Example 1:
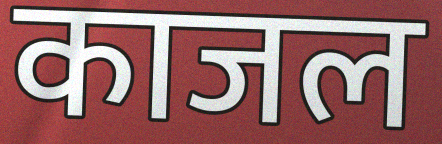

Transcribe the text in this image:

काजल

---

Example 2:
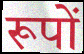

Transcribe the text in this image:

रूपों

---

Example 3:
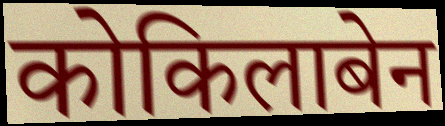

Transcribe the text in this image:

कोकिलाबेन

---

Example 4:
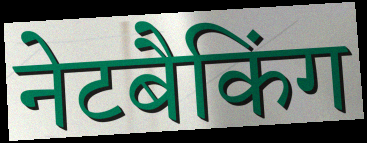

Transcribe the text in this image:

नेटबैकिंग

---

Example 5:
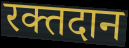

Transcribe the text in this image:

रक्तदान